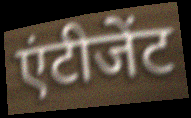
एंटीजेंट